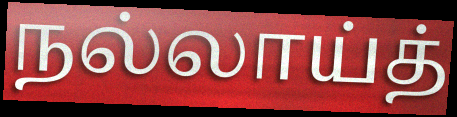
நல்லாய்த்